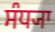
ਸੰਧ੍ਯਾ